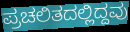
ಪ್ರಚಲಿತದಲ್ಲಿದ್ದವು